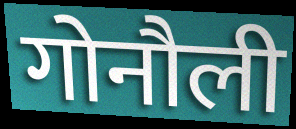
गोनौली